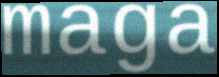
maga